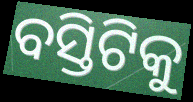
ବସ୍ତିଟିକୁ